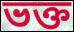
ভক্ত